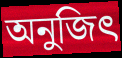
অনুজিৎ